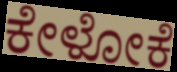
ಕೇಳೋಕೆ